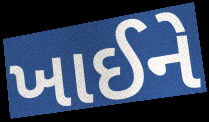
ખાઈને